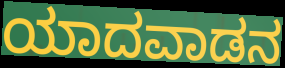
ಯಾದವಾಡನ